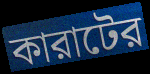
কারাটের